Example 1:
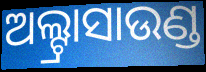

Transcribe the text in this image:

ଅଲ୍ଟ୍ରାସାଉଣ୍ଡ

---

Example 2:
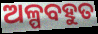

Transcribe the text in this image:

ଅଳ୍ପବହୁତ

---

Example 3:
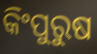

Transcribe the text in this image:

କିଂପୁରୁଷ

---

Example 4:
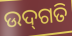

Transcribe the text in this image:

ଉଦ୍‌ଗତି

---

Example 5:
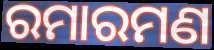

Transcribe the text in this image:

ରମାରମଣ